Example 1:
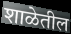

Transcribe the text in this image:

शाळेतील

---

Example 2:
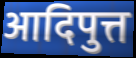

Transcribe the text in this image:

आदिपुत्त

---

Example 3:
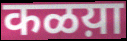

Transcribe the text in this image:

कळय़ा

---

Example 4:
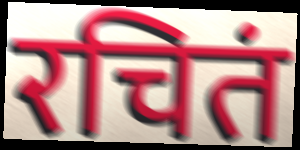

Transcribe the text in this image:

रचितं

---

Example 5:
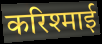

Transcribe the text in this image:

करिश्माई